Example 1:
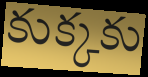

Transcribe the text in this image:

కుక్కకు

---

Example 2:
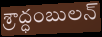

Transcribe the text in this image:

శ్రాద్ధంబులన్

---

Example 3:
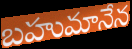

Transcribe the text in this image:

బహుమానేన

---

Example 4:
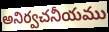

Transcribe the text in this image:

అనిర్వచనీయము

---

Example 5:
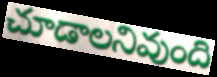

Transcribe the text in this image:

చూడాలనివుంది